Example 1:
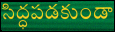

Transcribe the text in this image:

సిద్ధపడకుండా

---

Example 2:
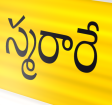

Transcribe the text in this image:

స్మరారే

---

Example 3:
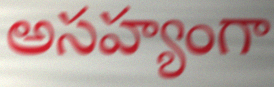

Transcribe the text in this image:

అసహ్యంగా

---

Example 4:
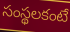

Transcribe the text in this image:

సంస్థలకంటే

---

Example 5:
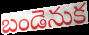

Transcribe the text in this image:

బండెనుక